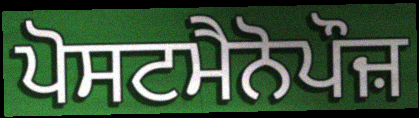
ਪੋਸਟਮੈਨੋਪੌਜ਼